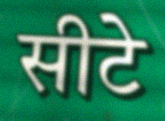
सीटे